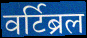
वर्टिब्रल